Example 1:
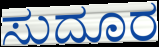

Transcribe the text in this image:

ಸುದೂರ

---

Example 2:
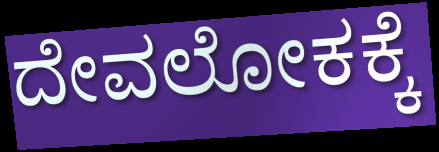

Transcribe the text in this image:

ದೇವಲೋಕಕ್ಕೆ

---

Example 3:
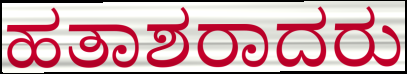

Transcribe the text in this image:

ಹತಾಶರಾದರು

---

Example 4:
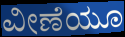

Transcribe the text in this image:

ವೀಣೆಯೂ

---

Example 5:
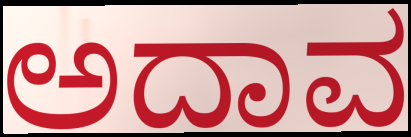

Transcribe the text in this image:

ಅದಾವ